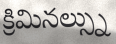
క్రిమినల్స్ను